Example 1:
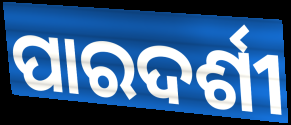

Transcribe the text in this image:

ପାରଦର୍ଶୀ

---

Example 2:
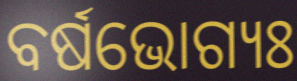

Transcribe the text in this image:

ବର୍ଷଭୋଗ୍ୟଃ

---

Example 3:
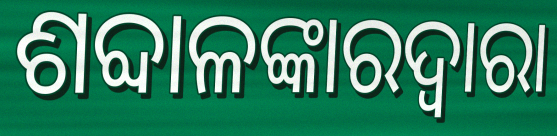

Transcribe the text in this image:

ଶବ୍ଦାଳଙ୍କାରଦ୍ୱାରା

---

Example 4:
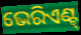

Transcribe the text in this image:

ଭେରିଏଣ୍ଟ୍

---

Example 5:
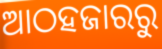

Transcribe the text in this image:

ଆଠହଜାରରୁ